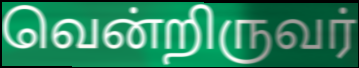
வென்றிருவர்